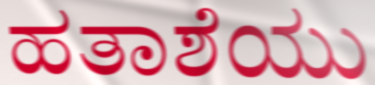
ಹತಾಶೆಯು